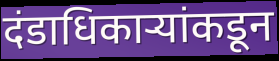
दंडाधिकाऱ्यांकडून